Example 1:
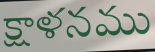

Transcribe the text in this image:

క్షాళనము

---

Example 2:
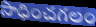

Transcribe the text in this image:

సాధించగలం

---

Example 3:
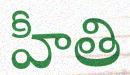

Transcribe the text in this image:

హీతి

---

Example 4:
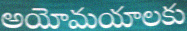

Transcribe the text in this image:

అయోమయాలకు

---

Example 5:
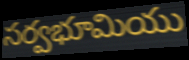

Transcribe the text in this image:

సర్వభూమియు